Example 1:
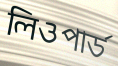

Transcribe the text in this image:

লিওপার্ড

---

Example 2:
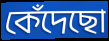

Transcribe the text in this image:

কেঁদেছো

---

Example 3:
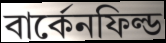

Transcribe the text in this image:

বার্কেনফিল্ড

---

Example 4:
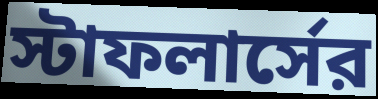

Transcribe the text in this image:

স্টাফলার্সের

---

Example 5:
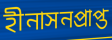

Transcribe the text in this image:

হীনাসনপ্রাপ্ত